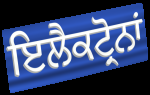
ਇਲੈਕਟ੍ਰੋਨਾਂ